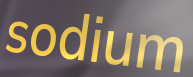
sodium